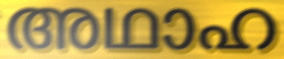
അഥാഹ